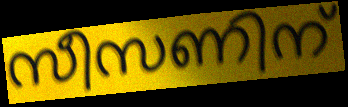
സീസണിന്